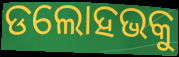
ଡଲୋହଭକୁ